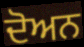
ਦੋਅਨ